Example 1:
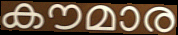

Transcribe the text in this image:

കൗമാര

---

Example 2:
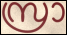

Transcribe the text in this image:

സ്രാ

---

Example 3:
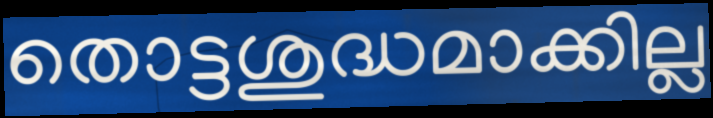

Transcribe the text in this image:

തൊട്ടശുദ്ധമാക്കില്ല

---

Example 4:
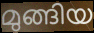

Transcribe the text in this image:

മുങ്ങിയ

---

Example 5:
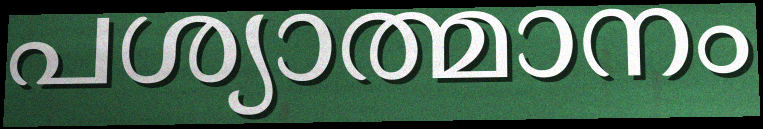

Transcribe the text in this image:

പശ്യാത്മാനം